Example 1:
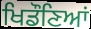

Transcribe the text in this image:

ਖਿਡੌਣਿਆਂ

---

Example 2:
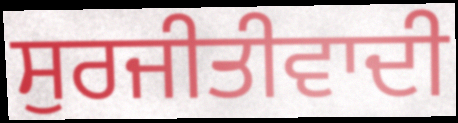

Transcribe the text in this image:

ਸੁਰਜੀਤੀਵਾਦੀ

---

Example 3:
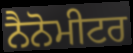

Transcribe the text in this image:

ਨੈਨੋਮੀਟਰ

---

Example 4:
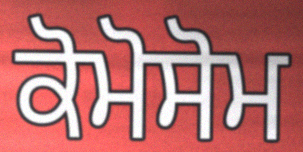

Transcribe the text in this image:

ਕੋਮੋਸੋਮ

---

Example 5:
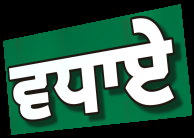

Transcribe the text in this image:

ਵਧਾਏ